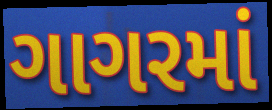
ગાગરમાં